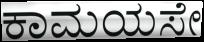
ಕಾಮಯಸೇ